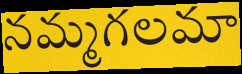
నమ్మగలమా